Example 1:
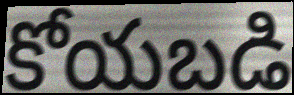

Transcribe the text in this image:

కోయబడి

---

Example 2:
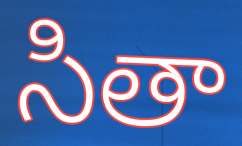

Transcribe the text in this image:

సితా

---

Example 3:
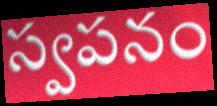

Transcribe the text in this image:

స్వపనం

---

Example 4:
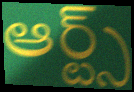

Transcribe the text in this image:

ఆర్ట్స్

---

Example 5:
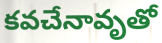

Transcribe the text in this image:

కవచేనావృతో